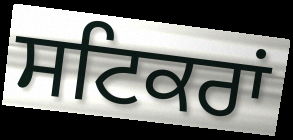
ਸਟਿਕਰਾਂ